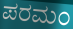
ಪರಮಂ